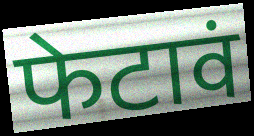
फेटावं